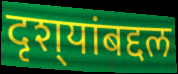
दृश्यांबद्दल